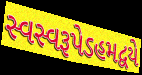
સ્વસ્વરૂપેઽહમદ્વયે